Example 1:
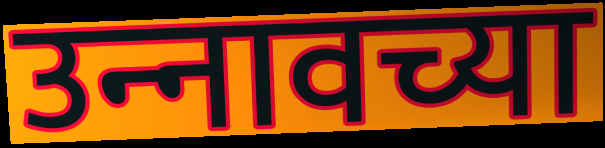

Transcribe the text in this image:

उन्नावच्या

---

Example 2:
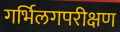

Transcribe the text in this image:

गर्भिलगपरीक्षण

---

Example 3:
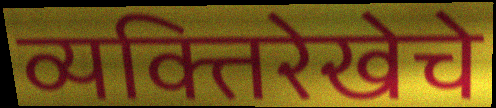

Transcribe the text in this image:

व्यक्तिरेखेचे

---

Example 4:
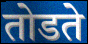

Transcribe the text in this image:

तोडते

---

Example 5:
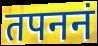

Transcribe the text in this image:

तपननं